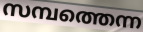
സമ്പത്തെന്ന